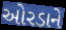
ઓરડાને